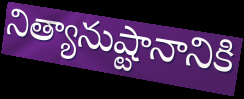
నిత్యానుష్టానానికి